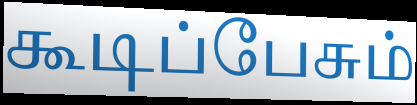
கூடிப்பேசும்